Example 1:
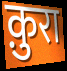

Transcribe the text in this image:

क़ुरा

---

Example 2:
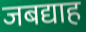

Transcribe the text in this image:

जबद्याह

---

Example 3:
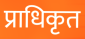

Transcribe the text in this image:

प्राधिकृत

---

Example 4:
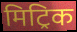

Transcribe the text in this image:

मिट्रिक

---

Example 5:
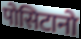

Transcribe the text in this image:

पोसिटानो